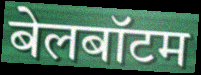
बेलबॉटम